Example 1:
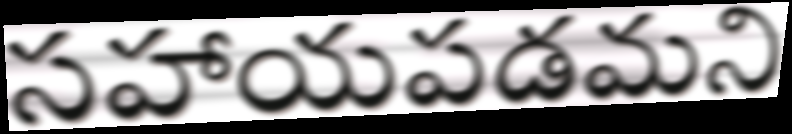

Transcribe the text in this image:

సహాయపడమని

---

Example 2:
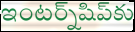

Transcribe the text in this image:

ఇంటర్న్‌షిప్‌కు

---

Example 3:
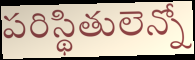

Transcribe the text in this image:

పరిస్థితులెన్నో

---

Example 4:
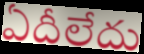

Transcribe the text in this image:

ఏదీలేదు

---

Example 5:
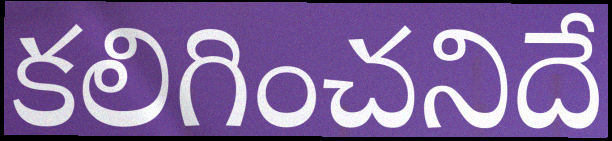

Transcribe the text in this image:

కలిగించనిదే